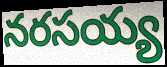
నరసయ్య